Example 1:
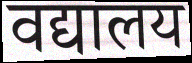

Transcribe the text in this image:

वद्यालय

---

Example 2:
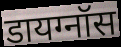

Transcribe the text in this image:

डायग्नॉस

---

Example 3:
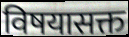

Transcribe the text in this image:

विषयासक्त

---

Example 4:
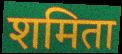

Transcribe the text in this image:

शमिता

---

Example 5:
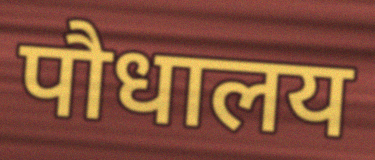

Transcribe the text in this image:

पौधालय